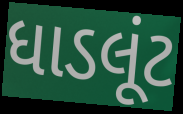
ધાડલૂંટ